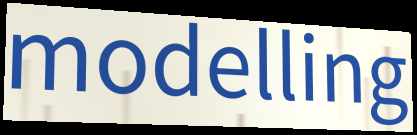
modelling